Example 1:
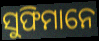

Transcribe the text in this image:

ସୁଫିମାନେ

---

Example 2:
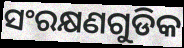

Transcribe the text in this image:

ସଂରକ୍ଷଣଗୁଡିକ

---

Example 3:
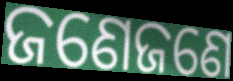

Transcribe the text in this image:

ଜଣେଜଣେ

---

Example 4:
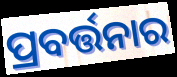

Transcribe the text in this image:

ପ୍ରବର୍ତ୍ତନାର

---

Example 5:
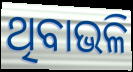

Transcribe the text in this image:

ଥିବାଭଳି